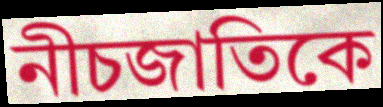
নীচজাতিকে